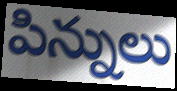
పిన్నులు